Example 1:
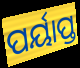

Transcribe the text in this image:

ପର୍ୟାପ୍ତ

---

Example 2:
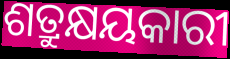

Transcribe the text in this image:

ଶତ୍ରୁକ୍ଷୟକାରୀ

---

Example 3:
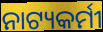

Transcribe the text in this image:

ନାଟ୍ୟକର୍ମୀ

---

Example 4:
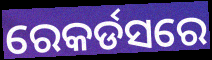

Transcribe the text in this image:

ରେକର୍ଡସରେ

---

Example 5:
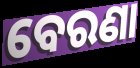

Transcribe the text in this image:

ବେରଣା